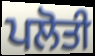
ਪਲੋਤੀ